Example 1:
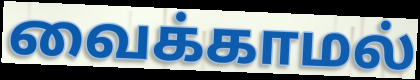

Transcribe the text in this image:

வைக்காமல்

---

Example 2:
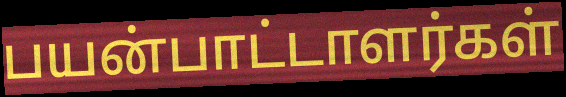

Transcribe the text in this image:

பயன்பாட்டாளர்கள்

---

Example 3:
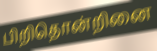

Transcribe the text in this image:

பிறிதொன்றினை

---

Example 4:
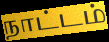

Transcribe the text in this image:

நாட்டம்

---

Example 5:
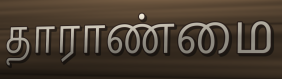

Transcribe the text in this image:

தாராண்மை